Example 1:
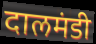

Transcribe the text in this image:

दालमंडी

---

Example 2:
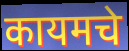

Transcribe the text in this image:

कायमचे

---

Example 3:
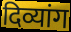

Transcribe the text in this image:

दिव्यांग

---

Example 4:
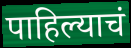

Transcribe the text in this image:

पाहिल्याचं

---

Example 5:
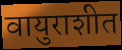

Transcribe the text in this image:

वायुराशीत